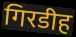
गिरडीह